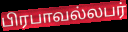
பிரபாவல்லபர்